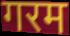
गरम